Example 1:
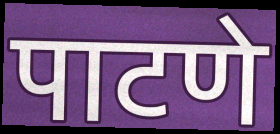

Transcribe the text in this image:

पाटणे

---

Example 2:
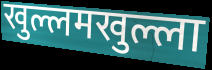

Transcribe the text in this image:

खुल्लमखुल्ला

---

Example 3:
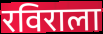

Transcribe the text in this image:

रविराला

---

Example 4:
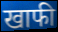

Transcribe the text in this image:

खाफी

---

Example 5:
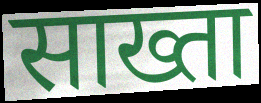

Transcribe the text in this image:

साख्ता